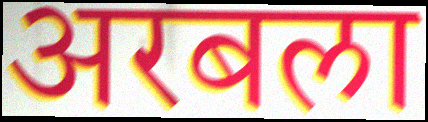
अरबला